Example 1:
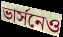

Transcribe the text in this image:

ভার্সনেও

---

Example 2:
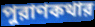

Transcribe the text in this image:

পুরাণকথার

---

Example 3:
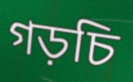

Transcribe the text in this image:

গড়চি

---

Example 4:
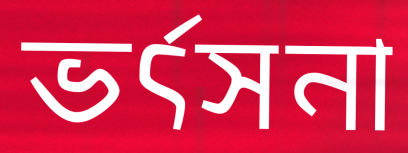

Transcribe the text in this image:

ভর্ৎসনা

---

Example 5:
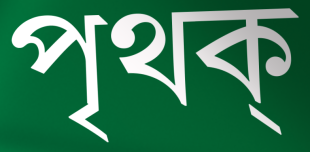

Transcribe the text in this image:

পৃথক্